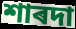
শাৰদা